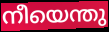
നീയെന്തു